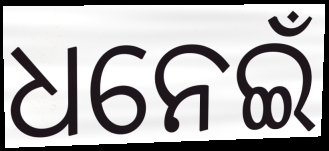
ଧନେଇଁ